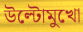
উল্টোমুখো